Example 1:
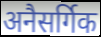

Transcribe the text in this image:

अनैसर्गिक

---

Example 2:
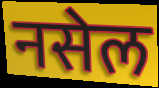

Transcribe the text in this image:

नसेल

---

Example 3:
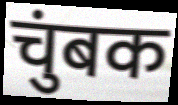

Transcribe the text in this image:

चुंबक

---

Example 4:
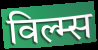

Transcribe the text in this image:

विल्म्स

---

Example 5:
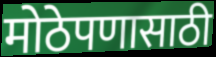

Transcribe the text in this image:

मोठेपणासाठी